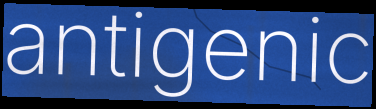
antigenic